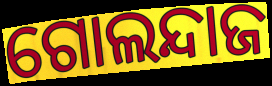
ଗୋଲନ୍ଦାଜ